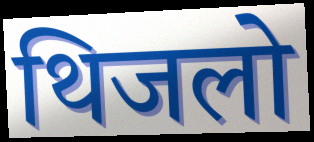
थिजलो